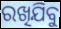
ରଖିଯିବୁ